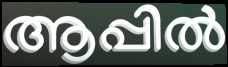
ആപ്പിൽ